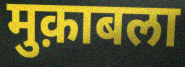
मुक़ाबला